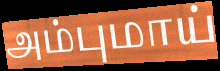
அம்புமாய்